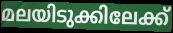
മലയിടുക്കിലേക്ക്